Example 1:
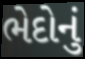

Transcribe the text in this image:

ભેદોનું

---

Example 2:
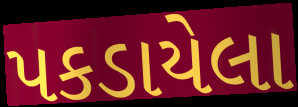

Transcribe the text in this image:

પકડાયેલા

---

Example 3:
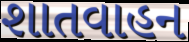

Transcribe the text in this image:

શાતવાહન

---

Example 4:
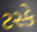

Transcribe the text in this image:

ટસ્કે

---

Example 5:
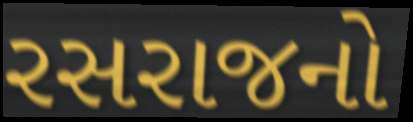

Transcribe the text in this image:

રસરાજનો